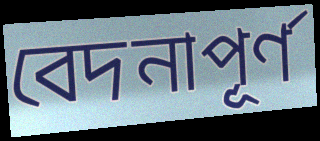
বেদনাপূর্ণ